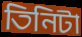
তিনিটা